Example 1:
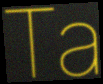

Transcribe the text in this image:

Ta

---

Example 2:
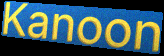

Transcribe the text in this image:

Kanoon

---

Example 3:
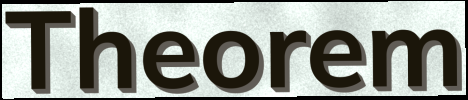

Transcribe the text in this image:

Theorem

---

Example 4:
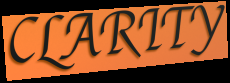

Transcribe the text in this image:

CLARITY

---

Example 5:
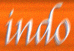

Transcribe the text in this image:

indo